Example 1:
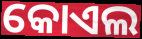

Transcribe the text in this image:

କୋଏଲ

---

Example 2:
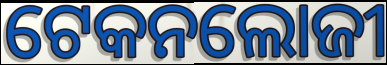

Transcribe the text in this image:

ଟେକନଲୋଜୀ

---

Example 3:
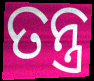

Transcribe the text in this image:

ତନ୍ତ୍ର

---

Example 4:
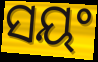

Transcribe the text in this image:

ସୟଂ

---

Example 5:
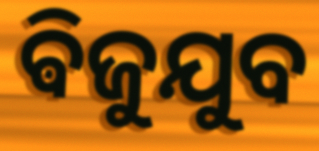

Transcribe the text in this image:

ଵିଜୁଯୁବ